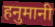
हनुमानी